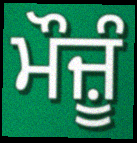
ਮੌਜ਼ੂੰ